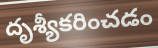
దృశ్యీకరించడం